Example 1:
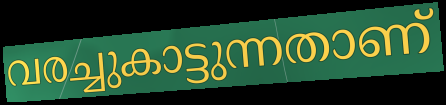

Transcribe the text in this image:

വരച്ചുകാട്ടുന്നതാണ്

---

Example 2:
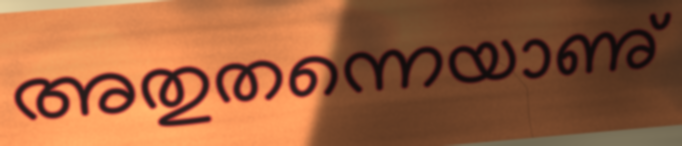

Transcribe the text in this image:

അതുതന്നെയാണു്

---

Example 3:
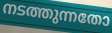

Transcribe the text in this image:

നടത്തുന്നതോ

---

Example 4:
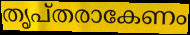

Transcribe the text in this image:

തൃപ്തരാകേണം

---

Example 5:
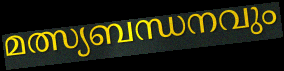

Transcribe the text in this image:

മത്സ്യബന്ധനവും